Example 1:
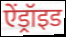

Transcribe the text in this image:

ऐंड्रॉइड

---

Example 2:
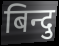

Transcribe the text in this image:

बिन्दु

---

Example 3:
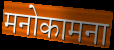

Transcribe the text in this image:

मनोकामना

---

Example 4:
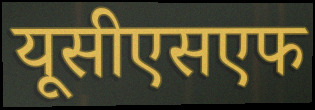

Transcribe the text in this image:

यूसीएसएफ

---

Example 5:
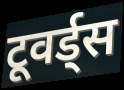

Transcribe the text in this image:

टूवर्ड्स